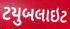
ટયુબલાઇટ